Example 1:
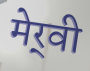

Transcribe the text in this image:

मेर्वी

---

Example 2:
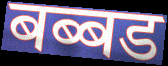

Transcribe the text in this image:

बब्बड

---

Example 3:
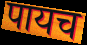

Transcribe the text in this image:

पायच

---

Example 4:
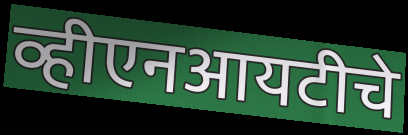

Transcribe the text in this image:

व्हीएनआयटीचे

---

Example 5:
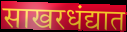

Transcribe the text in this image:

साखरधंद्यात